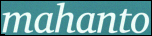
mahanto